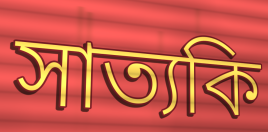
সাত্যকি